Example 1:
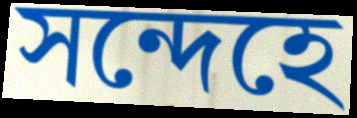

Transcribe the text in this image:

সন্দেহে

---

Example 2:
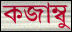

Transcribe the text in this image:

কজাম্বু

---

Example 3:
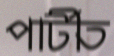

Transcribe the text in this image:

পাৰ্টীত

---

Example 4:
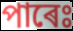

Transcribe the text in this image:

পাৰেঃ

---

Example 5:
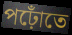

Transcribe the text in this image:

পঢ়োঁতে